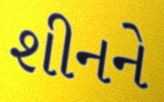
શીનને